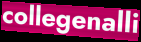
collegenalli